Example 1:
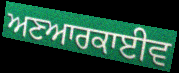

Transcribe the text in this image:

ਅਣਆਰਕਾਈਵ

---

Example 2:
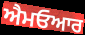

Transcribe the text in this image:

ਐਮਓਆਰ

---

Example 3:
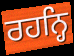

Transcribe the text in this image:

ਰਹਨ੍ਹਿ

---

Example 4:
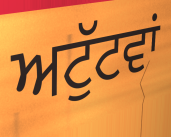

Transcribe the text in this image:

ਅਟੁੱਟਵਾਂ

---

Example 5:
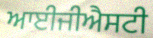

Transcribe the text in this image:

ਆਈਜੀਐਸਟੀ